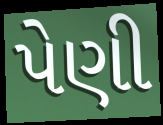
પેણી